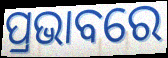
ପ୍ରଭାବରେ